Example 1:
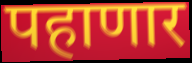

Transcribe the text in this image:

पहाणार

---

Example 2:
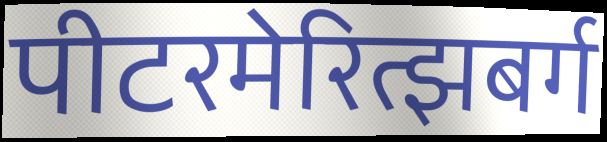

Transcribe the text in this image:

पीटरमेरित्झबर्ग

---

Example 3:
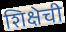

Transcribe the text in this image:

शिक्षेची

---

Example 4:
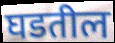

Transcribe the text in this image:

घडतील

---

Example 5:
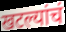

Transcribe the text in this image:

खटल्यांचं